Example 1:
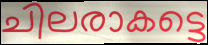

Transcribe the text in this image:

ചിലരാകട്ടെ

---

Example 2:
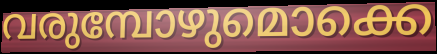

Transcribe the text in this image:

വരുമ്പോഴുമൊക്കെ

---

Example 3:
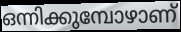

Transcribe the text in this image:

ഒന്നിക്കുമ്പോഴാണ്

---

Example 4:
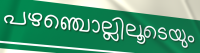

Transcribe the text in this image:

പഴഞ്ചൊല്ലിലൂടെയും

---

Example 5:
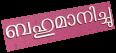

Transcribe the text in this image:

ബഹുമാനിച്ചു